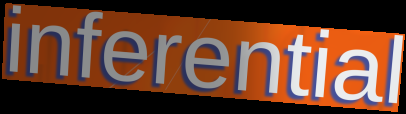
inferential